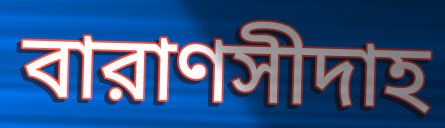
বারাণসীদাহ